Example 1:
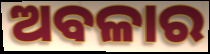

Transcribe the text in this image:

ଅବଳାର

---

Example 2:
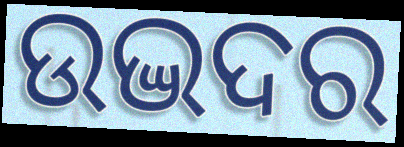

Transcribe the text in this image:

ଉଦ୍ଭଦର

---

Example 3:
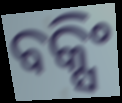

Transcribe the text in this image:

ବକ୍ସିଂ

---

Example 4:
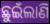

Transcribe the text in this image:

ଛୁଇଁଲାଣି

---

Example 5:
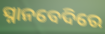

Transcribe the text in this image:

ସ୍ନାନବେଦିରେ